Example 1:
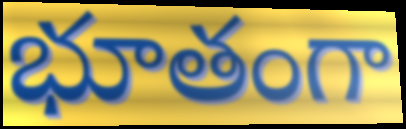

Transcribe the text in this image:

భూతంగా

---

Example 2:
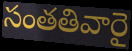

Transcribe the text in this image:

సంతతివారై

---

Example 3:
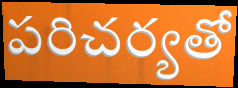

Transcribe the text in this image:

పరిచర్యతో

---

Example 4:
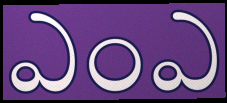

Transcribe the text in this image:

ఎంఎ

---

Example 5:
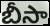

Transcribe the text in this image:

బీసా